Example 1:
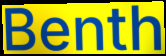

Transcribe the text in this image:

Benth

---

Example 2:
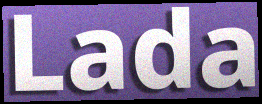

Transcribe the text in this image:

Lada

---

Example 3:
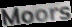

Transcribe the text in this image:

Moors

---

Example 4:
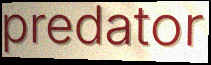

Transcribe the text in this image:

predator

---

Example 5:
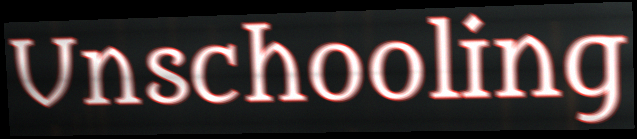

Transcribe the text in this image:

Unschooling